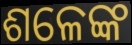
ଶଳେଙ୍କ